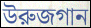
উরুজগান